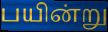
பயின்று